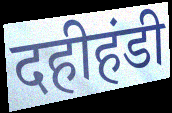
दहीहंडी